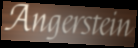
Angerstein